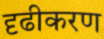
दृढीकरण